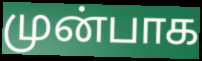
முன்பாக